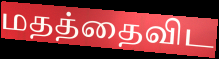
மதத்தைவிட